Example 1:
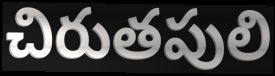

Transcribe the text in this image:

చిరుతపులి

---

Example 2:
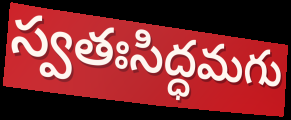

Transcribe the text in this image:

స్వతఃసిద్ధమగు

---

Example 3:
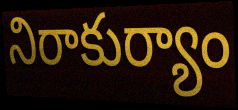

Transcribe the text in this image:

నిరాకుర్యాం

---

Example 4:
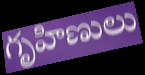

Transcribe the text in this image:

గృహిణులు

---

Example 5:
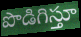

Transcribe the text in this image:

పొడిగిస్తూ